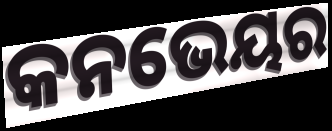
କନଭେୟର